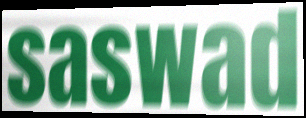
saswad